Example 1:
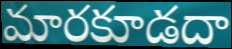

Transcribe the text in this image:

మారకూడదా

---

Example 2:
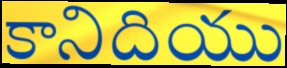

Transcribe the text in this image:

కానిదియు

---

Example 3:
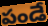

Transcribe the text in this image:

పండే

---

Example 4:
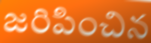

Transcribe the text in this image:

జరిపించిన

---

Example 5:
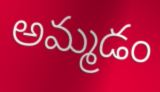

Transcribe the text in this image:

అమ్మడం